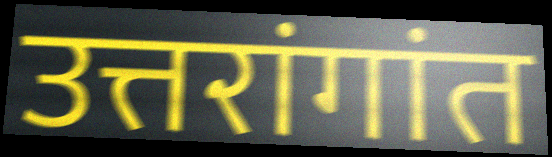
उत्तरांगांत